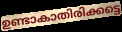
ഉണ്ടാകാതിരിക്കട്ടെ